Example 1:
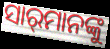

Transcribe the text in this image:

ସାର୍‌ମାନଙ୍କୁ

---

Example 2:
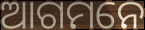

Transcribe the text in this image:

ଆଗମନେ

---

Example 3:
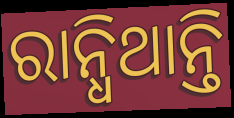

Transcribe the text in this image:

ରାନ୍ଧିଥାନ୍ତି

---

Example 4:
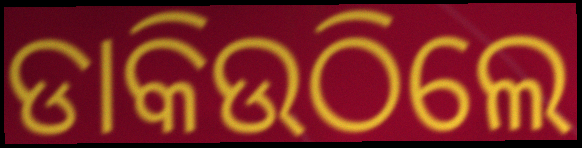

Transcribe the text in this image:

ଡାକିଉଠିଲେ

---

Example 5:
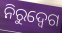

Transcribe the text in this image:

ନିରୁଦ୍ବେଗ